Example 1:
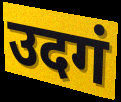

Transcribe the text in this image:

उदगं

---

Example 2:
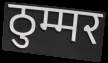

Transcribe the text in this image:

ठुम्मर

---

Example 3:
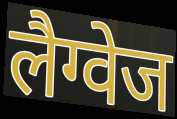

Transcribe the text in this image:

लैग्वेज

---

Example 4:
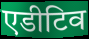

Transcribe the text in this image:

एडीटिव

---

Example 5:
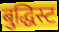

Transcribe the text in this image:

बुद्धिस्ट